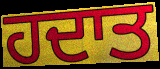
ਹਦਾਤ